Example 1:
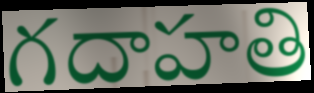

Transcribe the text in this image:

గదాహతి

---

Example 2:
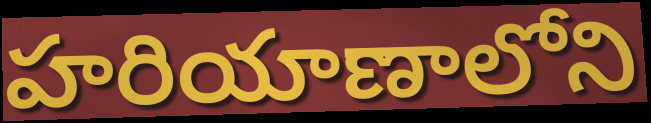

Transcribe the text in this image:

హరియాణాలోని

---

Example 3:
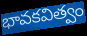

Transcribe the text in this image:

భావకవిత్వం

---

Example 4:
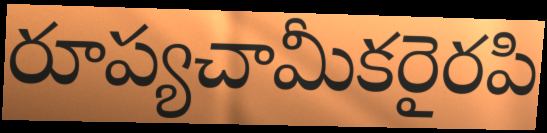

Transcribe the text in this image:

రూప్యచామీకరైరపి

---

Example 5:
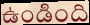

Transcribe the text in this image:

ఉండింది